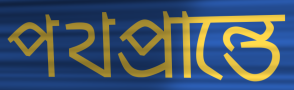
পথপ্রান্তে